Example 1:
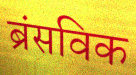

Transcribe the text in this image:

ब्रंसविक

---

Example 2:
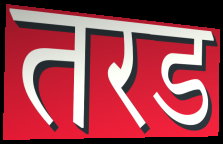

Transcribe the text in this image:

तरड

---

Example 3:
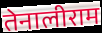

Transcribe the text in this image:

तेनालीराम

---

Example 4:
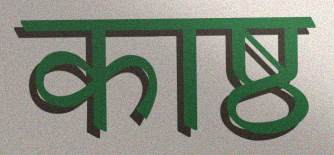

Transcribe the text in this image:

काष्ठ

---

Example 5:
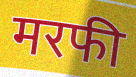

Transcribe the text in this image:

मरफी